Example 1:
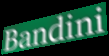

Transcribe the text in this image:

Bandini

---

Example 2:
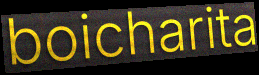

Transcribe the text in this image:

boicharita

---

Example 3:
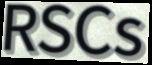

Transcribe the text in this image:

RSCs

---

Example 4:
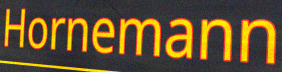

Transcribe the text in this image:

Hornemann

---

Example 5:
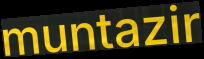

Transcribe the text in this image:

muntazir